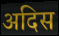
अदिस